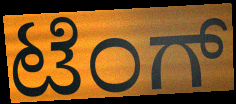
ಟೆಂಗ್